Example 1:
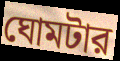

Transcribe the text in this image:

ঘোমটার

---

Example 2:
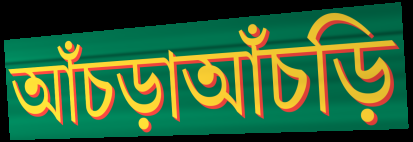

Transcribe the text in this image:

আঁচড়াআঁচড়ি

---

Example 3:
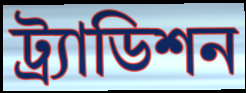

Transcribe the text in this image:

ট্র্যাডিশন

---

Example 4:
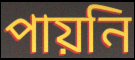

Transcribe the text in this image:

পায়নি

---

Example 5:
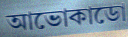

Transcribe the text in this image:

আভোকাডো